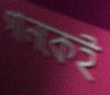
গানকেই